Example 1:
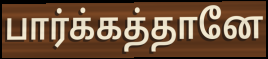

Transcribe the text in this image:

பார்க்கத்தானே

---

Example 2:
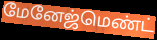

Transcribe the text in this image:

மேனேஜ்மெண்ட்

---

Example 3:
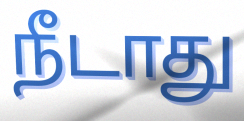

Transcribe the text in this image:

நீடாது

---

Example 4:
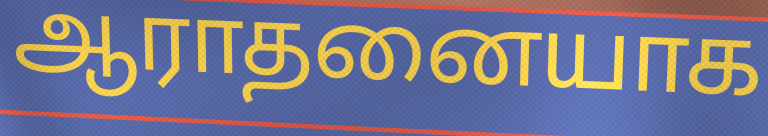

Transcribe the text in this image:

ஆராதனையாக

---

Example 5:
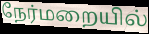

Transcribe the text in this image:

நேர்மறையில்